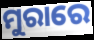
ମୁରାରେ